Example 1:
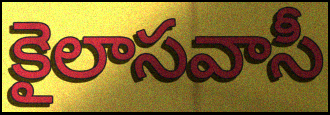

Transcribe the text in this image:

కైలాసవాసీ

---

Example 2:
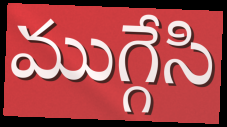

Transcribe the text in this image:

ముగ్గేసి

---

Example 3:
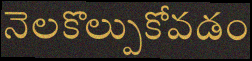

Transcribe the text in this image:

నెలకొల్పుకోవడం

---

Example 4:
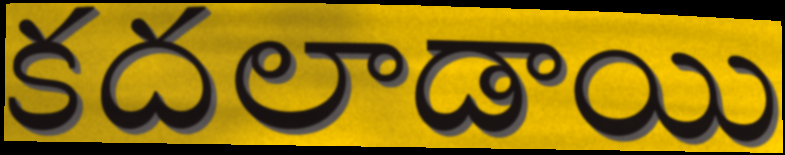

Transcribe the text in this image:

కదలాడాయి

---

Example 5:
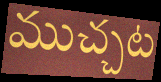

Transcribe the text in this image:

ముచ్చట